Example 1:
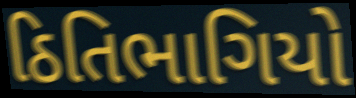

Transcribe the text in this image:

ઠિતિભાગિયો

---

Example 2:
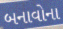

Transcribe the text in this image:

બનાવોના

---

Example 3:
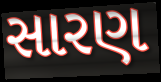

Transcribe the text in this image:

સારણ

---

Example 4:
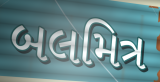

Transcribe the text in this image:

બલમિત્ર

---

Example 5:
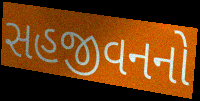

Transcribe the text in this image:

સહજીવનનો